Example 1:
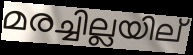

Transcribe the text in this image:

മരച്ചില്ലയില്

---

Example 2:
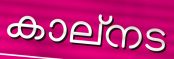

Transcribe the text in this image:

കാല്നട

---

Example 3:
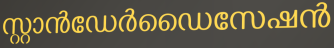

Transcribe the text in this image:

സ്റ്റാൻഡേർഡൈസേഷൻ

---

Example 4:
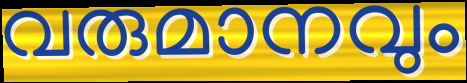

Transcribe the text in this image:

വരുമാനവും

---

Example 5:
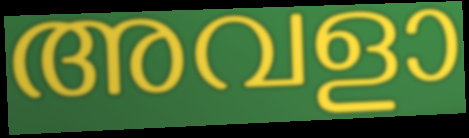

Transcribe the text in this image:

അവളാ